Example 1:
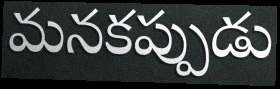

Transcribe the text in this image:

మనకప్పుడు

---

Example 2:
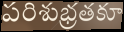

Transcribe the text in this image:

పరిశుభ్రతకూ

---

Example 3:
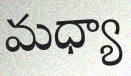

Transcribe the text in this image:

మధ్యా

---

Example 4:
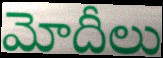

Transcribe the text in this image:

మోదీలు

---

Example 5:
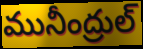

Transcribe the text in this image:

మునీంద్రుల్